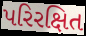
પરિરક્ષિત